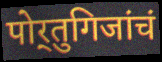
पोर्तुगिजांचं